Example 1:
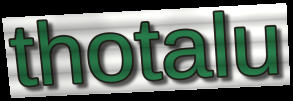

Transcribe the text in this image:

thotalu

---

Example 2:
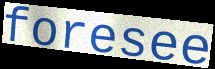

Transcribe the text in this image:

foresee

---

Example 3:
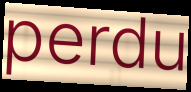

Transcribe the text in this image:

perdu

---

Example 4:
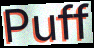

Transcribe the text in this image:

Puff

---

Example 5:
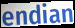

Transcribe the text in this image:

endian